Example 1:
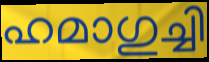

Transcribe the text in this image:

ഹമാഗുച്ചി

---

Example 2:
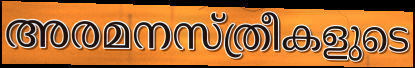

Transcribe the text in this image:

അരമനസ്ത്രീകളുടെ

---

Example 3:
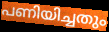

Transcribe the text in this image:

പണിയിച്ചതും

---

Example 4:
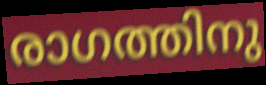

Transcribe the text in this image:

രാഗത്തിനു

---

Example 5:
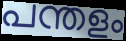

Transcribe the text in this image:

പന്തളം